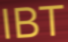
IBT